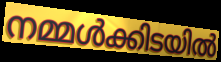
നമ്മൾക്കിടയിൽ